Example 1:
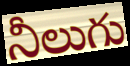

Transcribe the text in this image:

నీలుగు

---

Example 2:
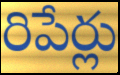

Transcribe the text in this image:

రిపేర్లు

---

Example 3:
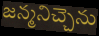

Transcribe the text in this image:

జన్మనిచ్చెను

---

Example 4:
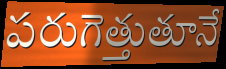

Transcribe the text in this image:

పరుగెత్తుతూనే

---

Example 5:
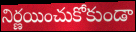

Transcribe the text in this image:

నిర్ణయించుకోకుండా